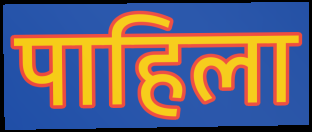
पाहिला